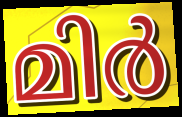
മിർ